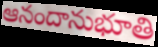
ఆనందానుభూతి